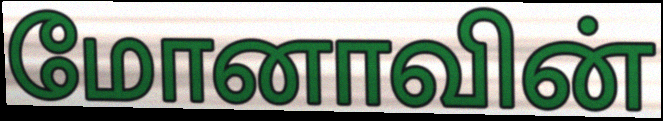
மோனாவின்